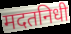
मदतनिधी